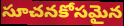
సూచనకోసమైన